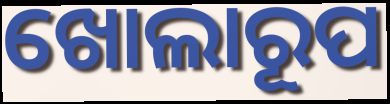
ଖୋଲାରୂପ